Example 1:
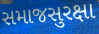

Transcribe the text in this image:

સમાજસુરક્ષા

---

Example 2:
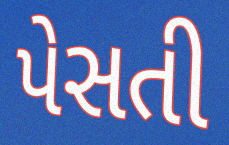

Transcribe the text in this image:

પેસતી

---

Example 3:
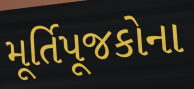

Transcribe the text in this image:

મૂર્તિપૂજકોના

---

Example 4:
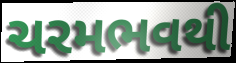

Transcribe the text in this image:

ચરમભવથી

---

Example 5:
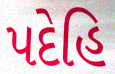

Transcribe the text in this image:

પદેહિ